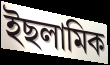
ইছলামিক